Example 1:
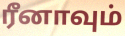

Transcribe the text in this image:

ரீனாவும்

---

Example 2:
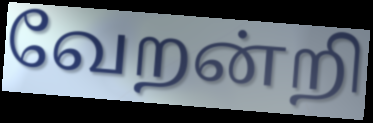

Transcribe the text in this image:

வேறன்றி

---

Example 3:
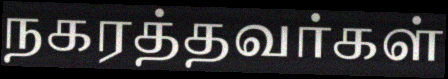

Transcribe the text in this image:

நகரத்தவர்கள்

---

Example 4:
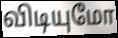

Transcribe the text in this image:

விடியுமோ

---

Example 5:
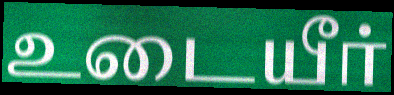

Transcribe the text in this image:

உடையீர்